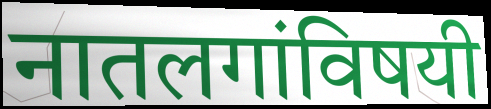
नातलगांविषयी